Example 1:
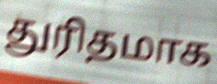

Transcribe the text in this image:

துரிதமாக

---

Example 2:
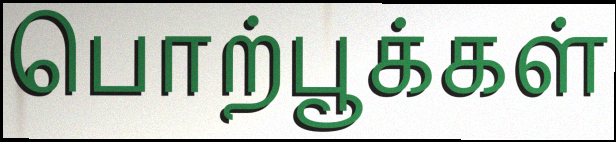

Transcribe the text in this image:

பொற்பூக்கள்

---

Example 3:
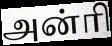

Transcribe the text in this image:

அன்ரி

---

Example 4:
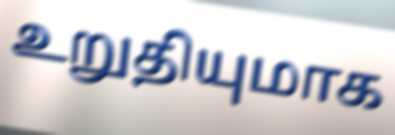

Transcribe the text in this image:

உறுதியுமாக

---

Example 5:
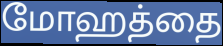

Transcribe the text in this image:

மோஹத்தை